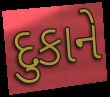
દુકાને